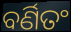
ବର୍ଣିତଂ